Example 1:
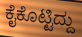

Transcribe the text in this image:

ಕೈಕೊಟ್ಟಿದ್ದು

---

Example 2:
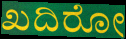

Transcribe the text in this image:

ಖದಿರೋ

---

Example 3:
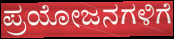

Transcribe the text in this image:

ಪ್ರಯೋಜನಗಳಿಗೆ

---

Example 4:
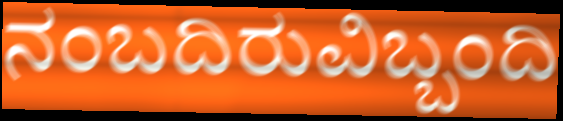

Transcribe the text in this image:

ನಂಬದಿರುವಿಬ್ಬಂದಿ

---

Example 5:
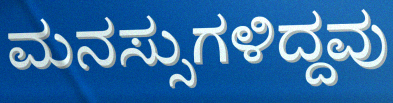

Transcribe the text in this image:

ಮನಸ್ಸುಗಳಿದ್ದವು